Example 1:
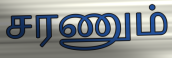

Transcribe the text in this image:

சரணும்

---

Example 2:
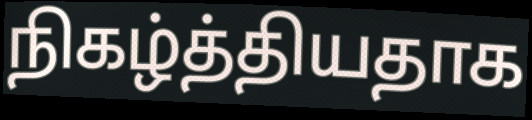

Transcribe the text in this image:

நிகழ்த்தியதாக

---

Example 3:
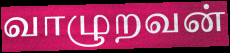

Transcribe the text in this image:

வாழுறவன்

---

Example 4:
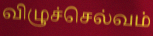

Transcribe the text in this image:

விழுச்செல்வம்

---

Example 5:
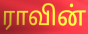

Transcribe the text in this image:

ராவின்